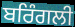
ਬਰਿੰਗਲੀ